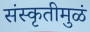
संस्कृतीमुळं